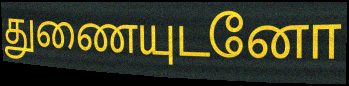
துணையுடனோ